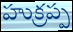
హుక్రప్ప